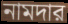
নামদার